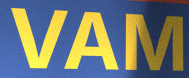
VAM